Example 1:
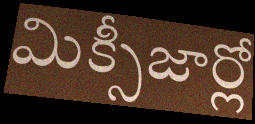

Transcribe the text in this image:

మిక్సీజార్లో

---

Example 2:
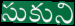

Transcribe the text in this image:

సుకుని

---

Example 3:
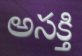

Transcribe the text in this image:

అసక్తి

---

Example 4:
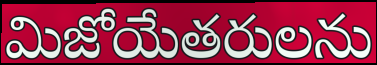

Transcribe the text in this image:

మిజోయేతరులను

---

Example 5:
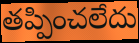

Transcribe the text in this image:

తప్పించలేదు